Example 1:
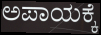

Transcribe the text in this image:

ಅಪಾಯಕ್ಕೆ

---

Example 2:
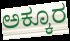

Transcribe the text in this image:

ಅಕ್ಕೂರ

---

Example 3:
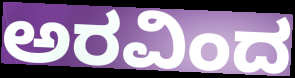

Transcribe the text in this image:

ಅರವಿಂದ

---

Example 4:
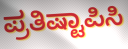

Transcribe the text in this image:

ಪ್ರತಿಷ್ಟಾಪಿಸಿ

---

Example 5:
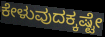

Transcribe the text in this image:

ಕೇಳುವುದಕ್ಕಷ್ಟೇ